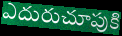
ఎదురుచూపుకి